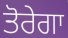
ਤੋਰੇਗਾ